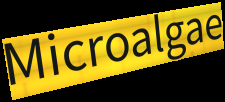
Microalgae